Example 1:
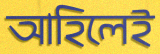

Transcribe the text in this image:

আহিলেই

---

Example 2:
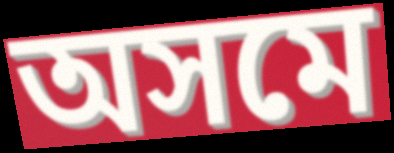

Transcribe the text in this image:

অসমে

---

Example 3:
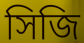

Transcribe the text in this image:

সিজি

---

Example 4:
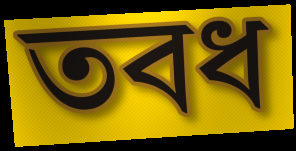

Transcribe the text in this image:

তবধ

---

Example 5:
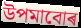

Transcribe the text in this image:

উপমাবোৰ